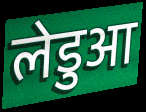
लेडुआ